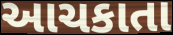
આચકાતા